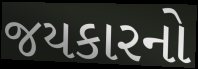
જયકારનો